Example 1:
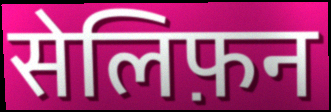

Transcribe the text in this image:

सेलिफ़न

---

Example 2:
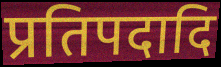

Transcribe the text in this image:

प्रतिपदादि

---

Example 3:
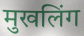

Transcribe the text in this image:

मुखलिंग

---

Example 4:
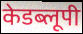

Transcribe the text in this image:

केडब्लूपी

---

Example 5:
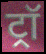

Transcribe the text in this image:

ट्रॉ